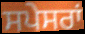
ਸਪੇਸਰਾਂ